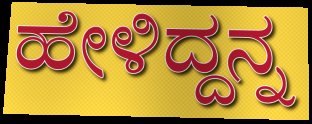
ಹೇಳಿದ್ದನ್ನ